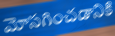
మోసగించడానికి